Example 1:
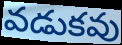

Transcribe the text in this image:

వడుకవు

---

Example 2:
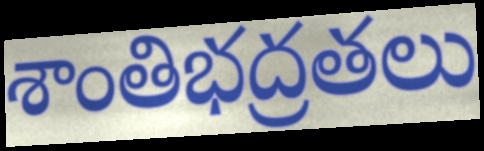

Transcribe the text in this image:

శాంతిభద్రతలు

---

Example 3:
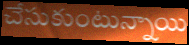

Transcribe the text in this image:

చేసుకుంటున్నాయి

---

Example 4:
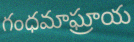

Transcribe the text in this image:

గంధమాఘ్రాయ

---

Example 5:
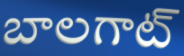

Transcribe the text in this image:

బాలగాట్